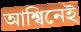
আশ্বিনেই